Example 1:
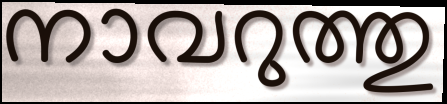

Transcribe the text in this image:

നാവറുത്തു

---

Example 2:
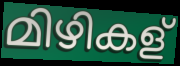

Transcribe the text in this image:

മിഴികള്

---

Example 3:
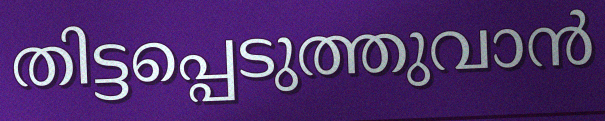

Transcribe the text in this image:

തിട്ടപ്പെടുത്തുവാൻ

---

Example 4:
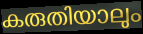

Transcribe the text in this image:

കരുതിയാലും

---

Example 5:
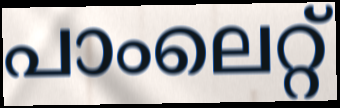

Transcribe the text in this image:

പാംലെറ്റ്